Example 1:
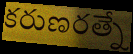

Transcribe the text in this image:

కరుణరత్నే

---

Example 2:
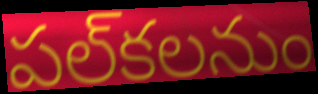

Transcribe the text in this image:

పల్‌కలనుం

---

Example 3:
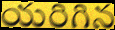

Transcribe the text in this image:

యరిగిన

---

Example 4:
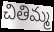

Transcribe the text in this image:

చితిమ్మ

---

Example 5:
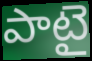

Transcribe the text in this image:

పాటై